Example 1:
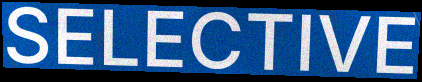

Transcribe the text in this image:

SELECTIVE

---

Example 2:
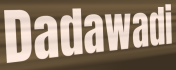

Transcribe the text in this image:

Dadawadi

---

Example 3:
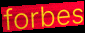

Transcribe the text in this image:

forbes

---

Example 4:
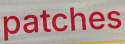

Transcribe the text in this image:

patches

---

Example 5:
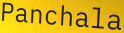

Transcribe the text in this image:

Panchala